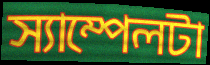
স্যাম্পেলটা